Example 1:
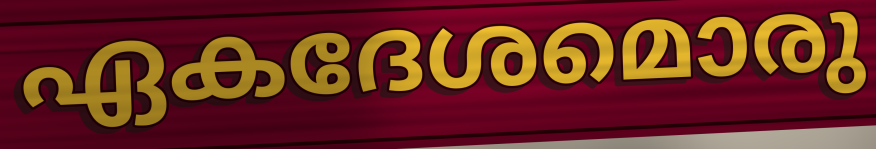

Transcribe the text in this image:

ഏകദേശമൊരു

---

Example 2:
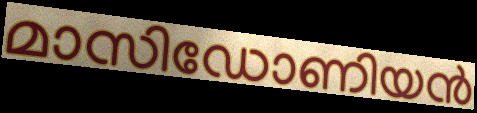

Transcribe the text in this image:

മാസിഡോണിയൻ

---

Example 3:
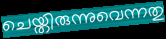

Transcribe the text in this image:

ചെയ്തിരുന്നുവെന്നതു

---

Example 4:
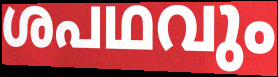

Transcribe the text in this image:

ശപഥവും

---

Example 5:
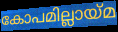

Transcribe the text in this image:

കോപമില്ലായ്മ